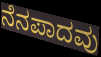
ನೆನಪಾದವು